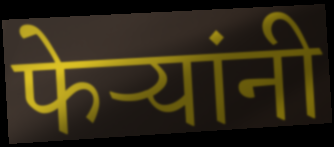
फेऱ्यांनी